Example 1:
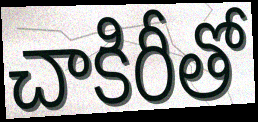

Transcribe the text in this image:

చాకిరీతో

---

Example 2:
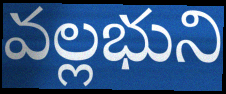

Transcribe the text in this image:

వల్లభుని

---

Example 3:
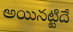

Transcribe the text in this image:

అయినట్టిదే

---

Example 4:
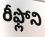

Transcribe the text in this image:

రీఫ్లోని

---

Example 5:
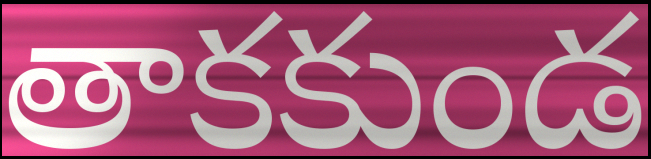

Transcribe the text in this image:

తాకకుండ